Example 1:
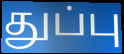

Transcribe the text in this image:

துப்பு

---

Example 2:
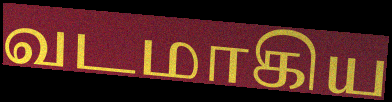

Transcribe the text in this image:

வடமாகிய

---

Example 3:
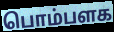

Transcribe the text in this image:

பொம்பளக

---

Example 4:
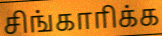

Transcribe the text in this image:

சிங்காரிக்க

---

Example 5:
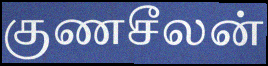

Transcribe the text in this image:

குணசீலன்